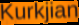
Kurkjian